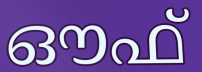
ഔഫ്